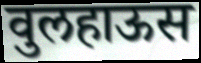
वुलहाऊस